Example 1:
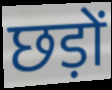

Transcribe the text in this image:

छड़ों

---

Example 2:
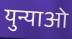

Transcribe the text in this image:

युन्याओ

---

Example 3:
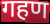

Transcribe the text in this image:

गहण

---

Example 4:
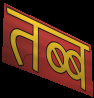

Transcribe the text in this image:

तब्ब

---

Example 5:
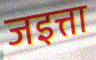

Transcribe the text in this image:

जइत्ता